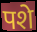
पशे